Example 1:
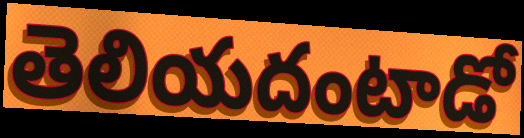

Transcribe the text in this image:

తెలియదంటాడో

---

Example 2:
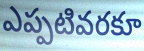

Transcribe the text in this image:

ఎప్పటివరకూ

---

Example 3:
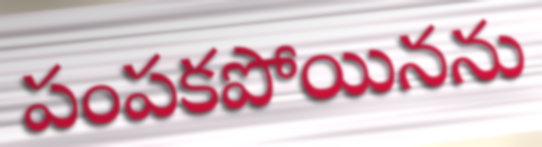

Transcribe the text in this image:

పంపకపోయినను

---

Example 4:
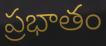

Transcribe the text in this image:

ప్రభాతం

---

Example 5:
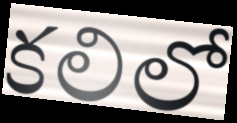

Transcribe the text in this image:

కలిలో